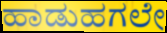
ಹಾಡುಹಗಲೇ